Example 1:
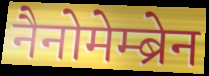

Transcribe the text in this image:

नैनोमेम्ब्रेन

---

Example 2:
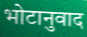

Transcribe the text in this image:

भोटानुवाद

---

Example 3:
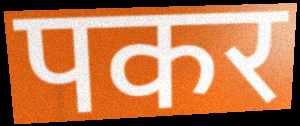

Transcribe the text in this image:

पकर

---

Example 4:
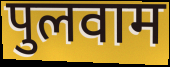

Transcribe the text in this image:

पुलवाम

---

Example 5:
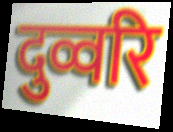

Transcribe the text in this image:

दुव्वरि